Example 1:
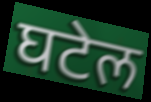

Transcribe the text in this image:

घटेल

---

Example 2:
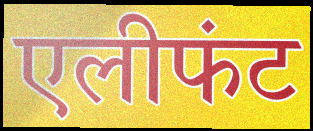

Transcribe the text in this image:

एलीफंट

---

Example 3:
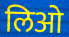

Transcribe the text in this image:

लिओ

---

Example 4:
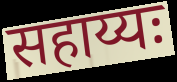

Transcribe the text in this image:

सहाय्यः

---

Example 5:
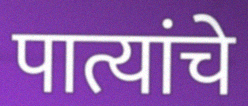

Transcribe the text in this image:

पात्यांचे